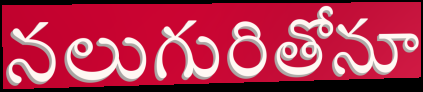
నలుగురితోనూ